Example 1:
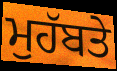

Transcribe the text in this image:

ਮੁਹੱਬਤੇ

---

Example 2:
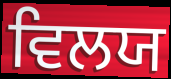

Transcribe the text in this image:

ਵਿਲਯ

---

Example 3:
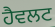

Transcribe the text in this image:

ਹੈਵਲਟ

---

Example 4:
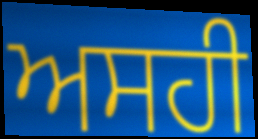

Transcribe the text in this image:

ਅਸਹੀ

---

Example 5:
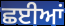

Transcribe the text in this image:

ਛਈਆਂ